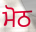
ਮੋਠ